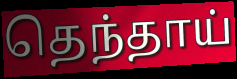
தெந்தாய்